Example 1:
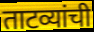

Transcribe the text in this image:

ताटव्यांची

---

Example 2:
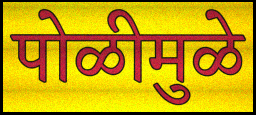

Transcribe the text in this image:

पोळीमुळे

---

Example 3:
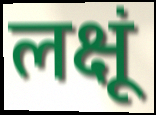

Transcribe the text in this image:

लक्षूं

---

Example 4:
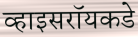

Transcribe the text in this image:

व्हाइसरॉयकडे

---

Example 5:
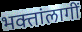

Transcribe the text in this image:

भक्तांलागीं